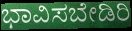
ಭಾವಿಸಬೇಡಿರಿ